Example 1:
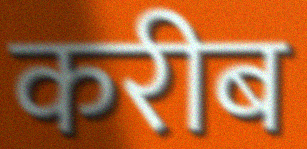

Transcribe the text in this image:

करीब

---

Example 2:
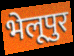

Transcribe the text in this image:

भेलूपुर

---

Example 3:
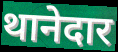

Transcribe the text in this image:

थानेदार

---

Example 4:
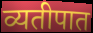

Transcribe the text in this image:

व्यतीपात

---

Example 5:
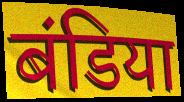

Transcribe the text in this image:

बंडिया